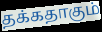
தக்கதாகும்